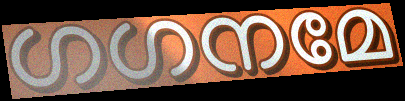
ഗഗനമേ